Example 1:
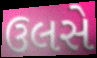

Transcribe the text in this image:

ઉલસે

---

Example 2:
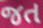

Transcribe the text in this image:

જત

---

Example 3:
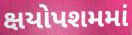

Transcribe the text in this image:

ક્ષયોપશમમાં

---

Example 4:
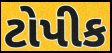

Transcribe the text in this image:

ટોપીક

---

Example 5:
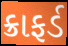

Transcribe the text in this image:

ક્રાફર્ડ